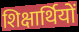
शिक्षार्थियों